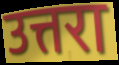
उत्तरा